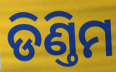
ଡିଣ୍ତିମ